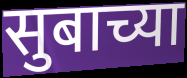
सुबाच्या